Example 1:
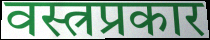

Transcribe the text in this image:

वस्त्रप्रकार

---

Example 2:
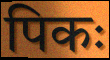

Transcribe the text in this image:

पिकः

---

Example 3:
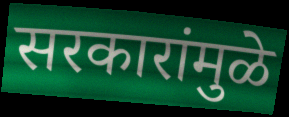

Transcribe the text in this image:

सरकारांमुळे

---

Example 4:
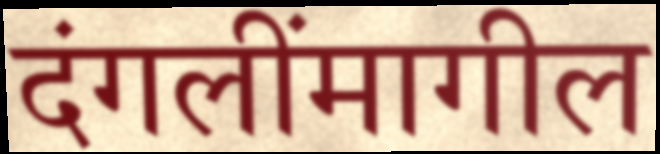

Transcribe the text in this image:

दंगलींमागील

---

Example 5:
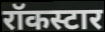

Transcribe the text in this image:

रॉकस्टार